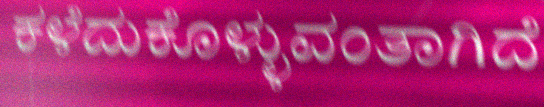
ಕಳೆದುಕೊಳ್ಳುವಂತಾಗಿದೆ